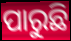
ପାରୁଛି